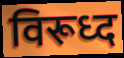
विरूध्द